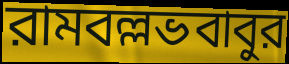
রামবল্লভবাবুর